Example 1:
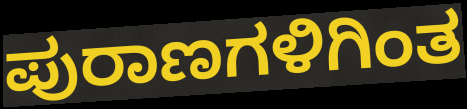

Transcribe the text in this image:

ಪುರಾಣಗಳಿಗಿಂತ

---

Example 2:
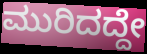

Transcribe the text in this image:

ಮುರಿದದ್ದೇ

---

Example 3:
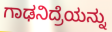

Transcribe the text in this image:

ಗಾಢನಿದ್ರೆಯನ್ನು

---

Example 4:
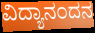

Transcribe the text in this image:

ವಿದ್ಯಾನಂದನ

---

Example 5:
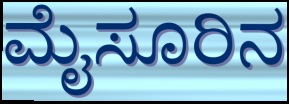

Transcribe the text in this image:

ಮೈಸೂರಿನ